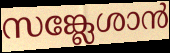
സങ്ക്ലേശാൻ